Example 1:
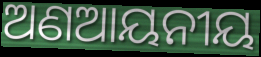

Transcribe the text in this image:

ଅଣଆୟନୀୟ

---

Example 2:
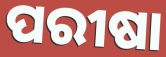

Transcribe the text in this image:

ପରୀଷା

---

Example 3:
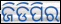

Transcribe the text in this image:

ଜିଡିପିର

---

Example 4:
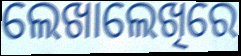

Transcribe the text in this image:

ଲେଖାଲେଖିରେ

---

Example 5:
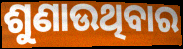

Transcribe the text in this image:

ଶୁଣାଉଥିବାର